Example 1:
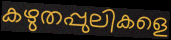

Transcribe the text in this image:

കഴുതപ്പുലികളെ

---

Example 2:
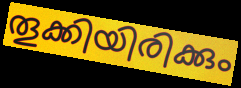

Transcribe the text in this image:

തൂക്കിയിരിക്കും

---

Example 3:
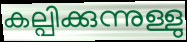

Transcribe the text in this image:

കല്പിക്കുന്നുള്ളു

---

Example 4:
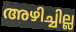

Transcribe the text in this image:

അഴിച്ചില്ല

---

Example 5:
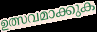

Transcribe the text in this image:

ഉത്സവമാക്കുക